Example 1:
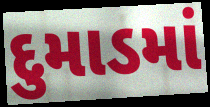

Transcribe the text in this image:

દુમાડમાં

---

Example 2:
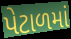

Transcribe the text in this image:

પેટાળમાં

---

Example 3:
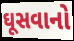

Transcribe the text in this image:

ઘૂસવાનો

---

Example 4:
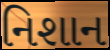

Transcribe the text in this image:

નિશાન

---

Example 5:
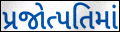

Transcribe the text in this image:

પ્રજોત્પતિમાં